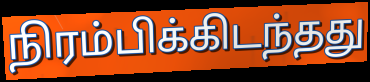
நிரம்பிக்கிடந்தது